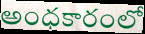
అంధకారంలో